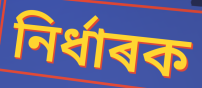
নিৰ্ধাৰক